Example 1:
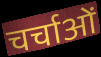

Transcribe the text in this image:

चर्चाओं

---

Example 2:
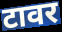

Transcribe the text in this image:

टावर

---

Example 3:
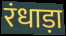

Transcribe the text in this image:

रंधाड़ा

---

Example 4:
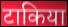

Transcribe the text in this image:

टाकिया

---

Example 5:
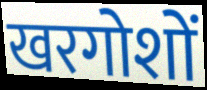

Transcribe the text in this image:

खरगोशों